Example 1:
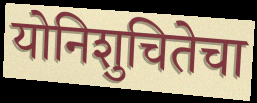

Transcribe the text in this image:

योनिशुचितेचा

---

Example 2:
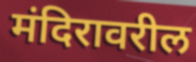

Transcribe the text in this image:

मंदिरावरील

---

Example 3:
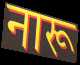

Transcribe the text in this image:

नारू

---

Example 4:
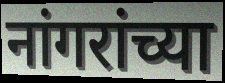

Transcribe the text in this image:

नांगरांच्या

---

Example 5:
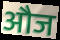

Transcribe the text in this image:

औज